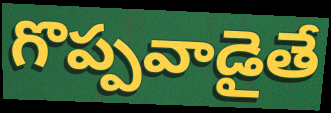
గొప్పవాడైతే